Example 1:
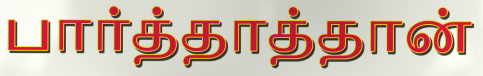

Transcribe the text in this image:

பார்த்தாத்தான்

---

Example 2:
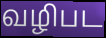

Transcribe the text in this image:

வழிபட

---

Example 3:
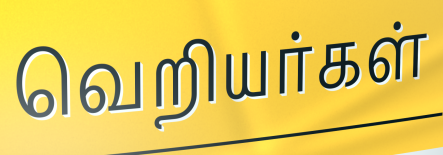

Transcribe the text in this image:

வெறியர்கள்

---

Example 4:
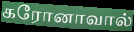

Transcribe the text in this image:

கரோனாவால்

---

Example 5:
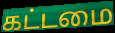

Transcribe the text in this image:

கட்டமை